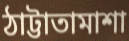
ঠাট্টাতামাশা